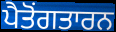
ਪੈਤੋਂਗਤਾਰਨ